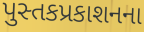
પુસ્તકપ્રકાશનના